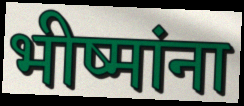
भीष्मांना